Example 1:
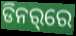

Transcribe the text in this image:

ଡିନର୍‌ରେ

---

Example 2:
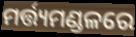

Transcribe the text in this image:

ମର୍ତ୍ତ୍ୟମଣ୍ଡଳରେ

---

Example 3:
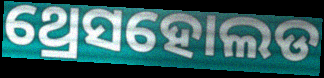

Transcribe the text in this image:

ଥ୍ରେସହୋଲଡ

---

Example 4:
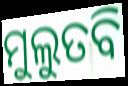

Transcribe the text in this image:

ମୁଲୁତବି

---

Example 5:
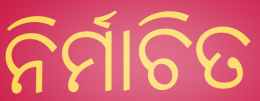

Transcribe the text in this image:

ନିର୍ମାଚିତ